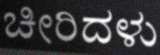
ಚೀರಿದಳು